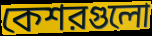
কেশরগুলো